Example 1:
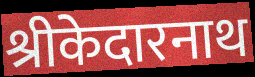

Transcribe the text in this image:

श्रीकेदारनाथ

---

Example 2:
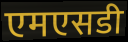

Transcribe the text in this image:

एमएसडी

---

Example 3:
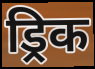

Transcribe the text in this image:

ड्रिक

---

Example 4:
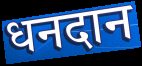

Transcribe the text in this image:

धनदान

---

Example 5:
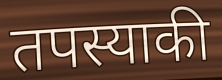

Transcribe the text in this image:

तपस्याकी